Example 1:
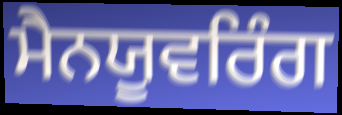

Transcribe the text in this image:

ਮੈਨਯੂਵਰਿੰਗ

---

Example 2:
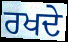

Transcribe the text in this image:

ਰਖਦੇ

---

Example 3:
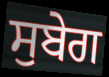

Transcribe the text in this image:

ਸੁਬੇਗ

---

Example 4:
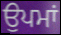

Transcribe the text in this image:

ਉਪਮਾਂ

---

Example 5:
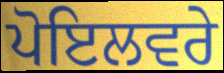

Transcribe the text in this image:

ਪੋਇਲਵਰੇ